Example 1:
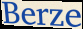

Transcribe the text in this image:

Berze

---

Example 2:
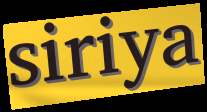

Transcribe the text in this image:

siriya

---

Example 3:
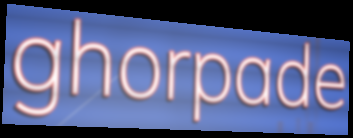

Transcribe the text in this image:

ghorpade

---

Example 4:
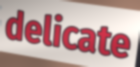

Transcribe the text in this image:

delicate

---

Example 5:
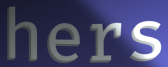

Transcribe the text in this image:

hers